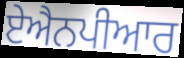
ਏਐਨਪੀਆਰ